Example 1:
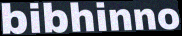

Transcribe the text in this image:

bibhinno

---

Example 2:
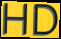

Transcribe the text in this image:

HD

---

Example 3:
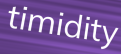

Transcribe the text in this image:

timidity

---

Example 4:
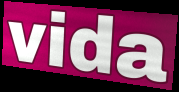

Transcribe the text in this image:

vida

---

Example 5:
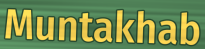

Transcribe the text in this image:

Muntakhab